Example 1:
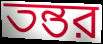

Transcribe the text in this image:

তন্তর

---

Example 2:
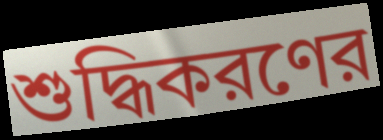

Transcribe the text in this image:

শুদ্ধিকরণের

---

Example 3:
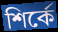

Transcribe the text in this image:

শির্কে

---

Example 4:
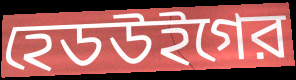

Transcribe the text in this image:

হেডউইগের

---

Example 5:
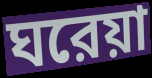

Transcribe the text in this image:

ঘরেয়া